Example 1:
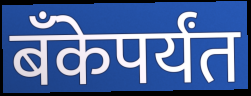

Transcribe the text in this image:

बॅंकेपर्यंत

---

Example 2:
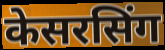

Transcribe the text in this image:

केसरसिंग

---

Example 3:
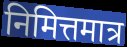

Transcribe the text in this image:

निमित्तमात्र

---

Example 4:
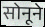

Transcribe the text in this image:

सोनूने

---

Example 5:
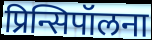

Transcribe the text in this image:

प्रिन्सिपॉलना